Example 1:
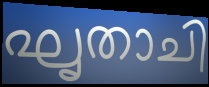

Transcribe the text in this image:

ഘൃതാചി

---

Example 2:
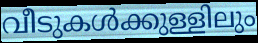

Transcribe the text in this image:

വീടുകൾക്കുള്ളിലും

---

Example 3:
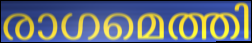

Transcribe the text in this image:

രാഗമെത്തി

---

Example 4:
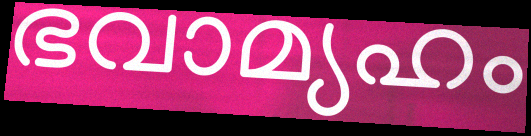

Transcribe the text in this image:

ഭവാമ്യഹം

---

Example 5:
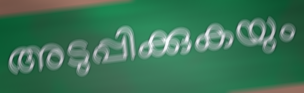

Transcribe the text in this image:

അടുപ്പിക്കുകയും